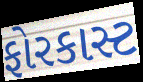
ફોરકાસ્ટ